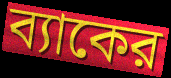
ব্যাকের